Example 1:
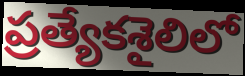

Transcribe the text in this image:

ప్రత్యేకశైలిలో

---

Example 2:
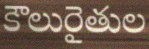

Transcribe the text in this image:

కౌలురైతుల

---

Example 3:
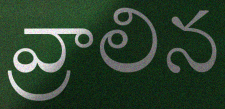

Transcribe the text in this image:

వ్రాలిన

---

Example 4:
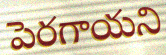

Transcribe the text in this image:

పెరగాయని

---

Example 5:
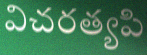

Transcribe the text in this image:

విచరత్యపి